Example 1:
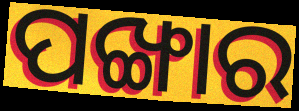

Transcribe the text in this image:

ପଙ୍ଖାର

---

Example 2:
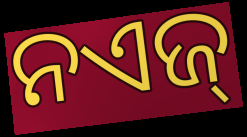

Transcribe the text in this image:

ନଏଜ୍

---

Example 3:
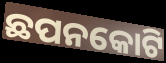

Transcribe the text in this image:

ଛପନକୋଟି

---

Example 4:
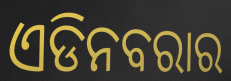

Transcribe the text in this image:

ଏଡିନବରାର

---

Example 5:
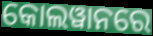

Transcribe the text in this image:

କୋଲୱାନରେ